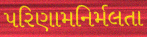
પરિણામનિર્મલતા